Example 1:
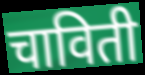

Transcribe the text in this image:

चाविती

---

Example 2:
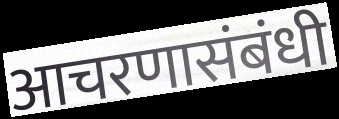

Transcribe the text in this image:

आचरणासंबंधी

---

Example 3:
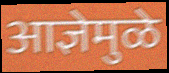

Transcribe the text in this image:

आज्ञेमुळे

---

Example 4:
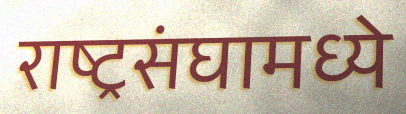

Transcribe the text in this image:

राष्ट्रसंघामध्ये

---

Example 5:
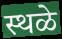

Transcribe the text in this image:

स्थळे